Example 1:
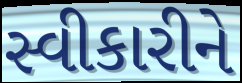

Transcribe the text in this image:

સ્વીકારીને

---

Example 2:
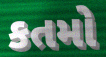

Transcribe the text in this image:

કતમો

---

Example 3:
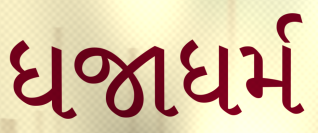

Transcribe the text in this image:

ધજાધર્મ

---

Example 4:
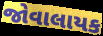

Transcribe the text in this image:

જોવાલાયક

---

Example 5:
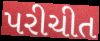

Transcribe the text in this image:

પરીચીત